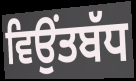
ਵਿਉਂਤਬੱਧ